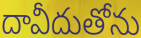
దావీదుతోను